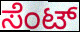
ಸೆಂಟ್